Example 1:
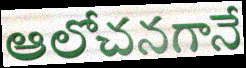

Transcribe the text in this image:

ఆలోచనగానే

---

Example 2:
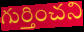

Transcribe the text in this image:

గుర్తించని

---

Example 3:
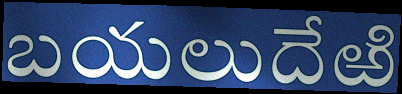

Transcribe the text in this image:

బయలుదేఱి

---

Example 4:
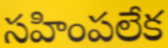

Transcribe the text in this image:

సహింపలేక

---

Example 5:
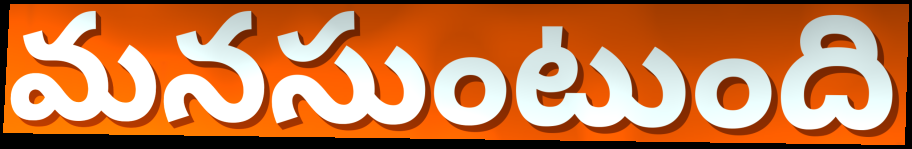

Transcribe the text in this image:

మనసుంటుంది